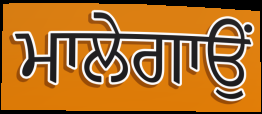
ਮਾਲੇਗਾਉਂ